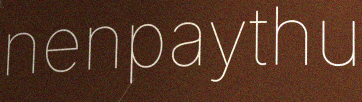
nenpaythu